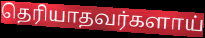
தெரியாதவர்களாய்